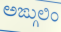
ಅಙ್ಗುಲಿಂ